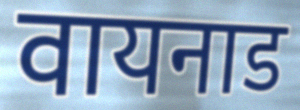
वायनाड